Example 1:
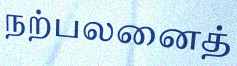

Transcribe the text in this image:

நற்பலனைத்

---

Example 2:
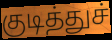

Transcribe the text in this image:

குடித்துச்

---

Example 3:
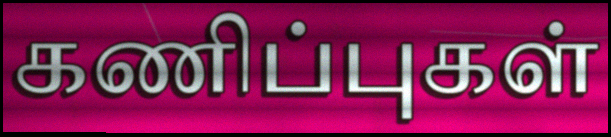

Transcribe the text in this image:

கணிப்புகள்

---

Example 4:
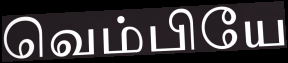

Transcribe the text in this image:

வெம்பியே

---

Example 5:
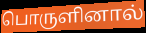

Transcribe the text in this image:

பொருளினால்